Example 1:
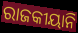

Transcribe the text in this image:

ରାଜକୀୟାନି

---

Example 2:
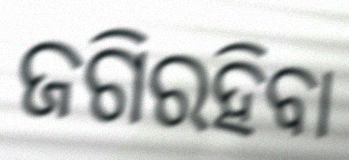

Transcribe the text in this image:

ଜଗିରହିବା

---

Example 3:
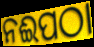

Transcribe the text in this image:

ନଈପଠା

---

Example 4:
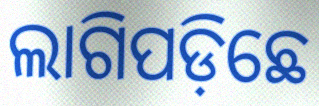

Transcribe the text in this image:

ଲାଗିପଡ଼ିଛେ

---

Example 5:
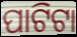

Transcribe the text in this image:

ପାଟିଟା